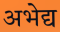
अभेद्य